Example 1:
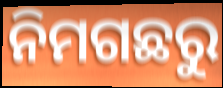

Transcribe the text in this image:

ନିମଗଛରୁ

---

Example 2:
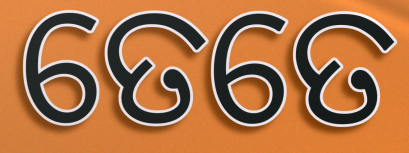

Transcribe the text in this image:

ତେତେ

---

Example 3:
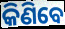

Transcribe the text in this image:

କିଣିବେ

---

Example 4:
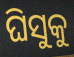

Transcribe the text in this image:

ଘିସୁକୁ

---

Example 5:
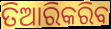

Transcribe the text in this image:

ତିଆରିକରିବ